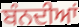
ਬੰਨਦੀਆਂ